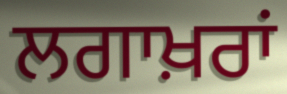
ਲਗਾਖ਼ਰਾਂ